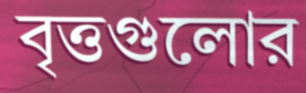
বৃত্তগুলোর